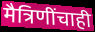
मैत्रिणींचाही